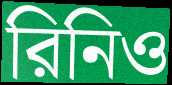
রিনিও